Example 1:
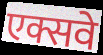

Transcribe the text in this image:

एक्सवे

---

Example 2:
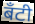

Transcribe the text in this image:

बँटी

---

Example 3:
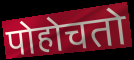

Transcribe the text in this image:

पोहोचतो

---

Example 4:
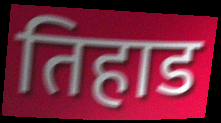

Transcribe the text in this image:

तिहाड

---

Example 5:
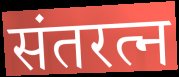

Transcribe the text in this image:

संतरत्न